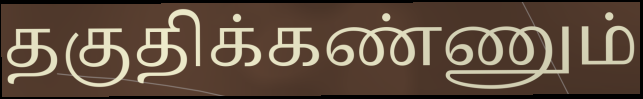
தகுதிக்கண்ணும்